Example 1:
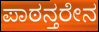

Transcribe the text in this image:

ಪಾಠನ್ತರೇನ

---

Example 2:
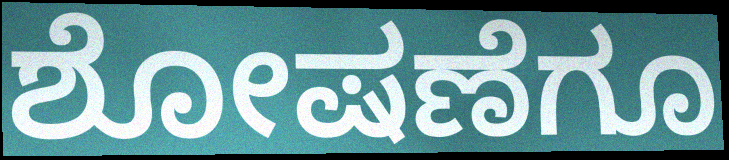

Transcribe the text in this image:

ಶೋಷಣೆಗೂ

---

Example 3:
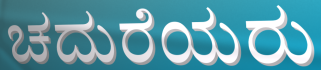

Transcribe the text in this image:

ಚದುರೆಯರು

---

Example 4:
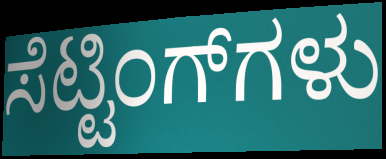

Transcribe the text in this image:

ಸೆಟ್ಟಿಂಗ್‌ಗಳು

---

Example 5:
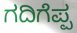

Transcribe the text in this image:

ಗದಿಗೆಪ್ಪ